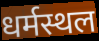
धर्मस्थल